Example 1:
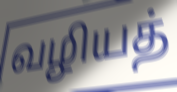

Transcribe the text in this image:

வழியத்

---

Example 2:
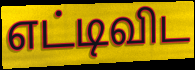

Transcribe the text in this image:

எட்டிவிட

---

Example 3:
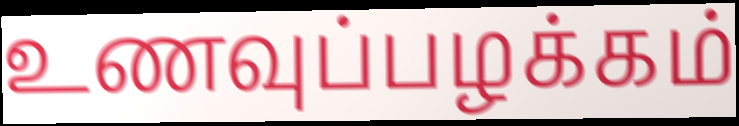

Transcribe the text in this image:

உணவுப்பழக்கம்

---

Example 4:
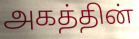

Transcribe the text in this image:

அகத்தின்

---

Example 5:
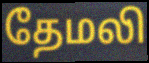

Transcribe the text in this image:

தேமலி